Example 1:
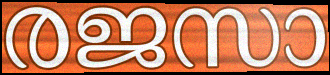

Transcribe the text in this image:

രജസാ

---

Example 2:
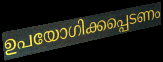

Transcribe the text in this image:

ഉപയോഗിക്കപ്പെടണം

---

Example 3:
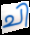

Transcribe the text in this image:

ചി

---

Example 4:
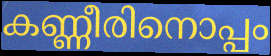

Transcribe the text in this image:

കണ്ണീരിനൊപ്പം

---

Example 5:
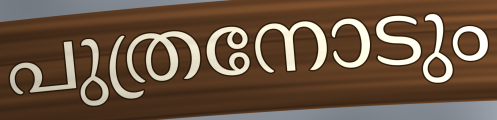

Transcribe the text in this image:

പുത്രനോടും